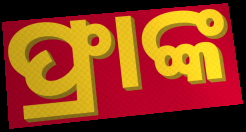
ଫ୍ରାଙ୍କ